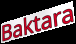
Baktara